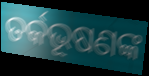
ତର୍କଭୂଷଣଙ୍କ